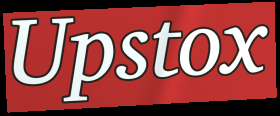
Upstox